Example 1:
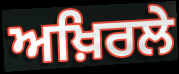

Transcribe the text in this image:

ਅਖ਼ਿਰਲੇ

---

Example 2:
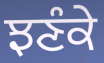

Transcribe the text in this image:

ਝਣੰਕੇ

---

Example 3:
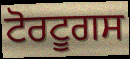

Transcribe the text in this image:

ਟੋਰਟੂਗਸ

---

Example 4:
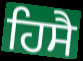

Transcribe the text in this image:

ਹਿਸੈ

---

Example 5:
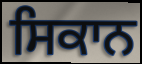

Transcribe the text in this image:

ਸਿਕਾਨ